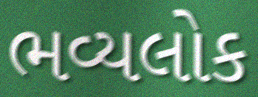
ભવ્યલોક